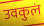
उवकुलं